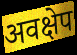
अवक्षेप